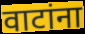
वाटांना